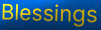
Blessings